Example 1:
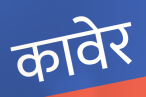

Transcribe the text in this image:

कावेर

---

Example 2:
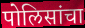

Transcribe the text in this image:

पोलिसांचा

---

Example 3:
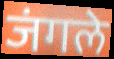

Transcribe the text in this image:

जंगले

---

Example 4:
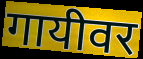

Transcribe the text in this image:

गायीवर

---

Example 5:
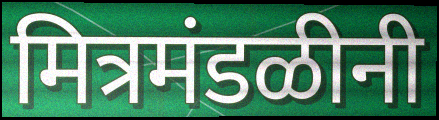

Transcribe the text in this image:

मित्रमंडळीनी